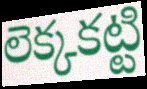
లెక్కకట్టి